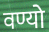
वण्यो